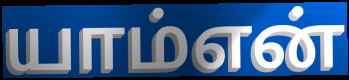
யாம்என்